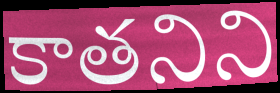
కాతనిని